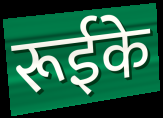
रूईके